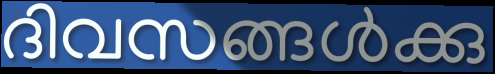
ദിവസങ്ങൾക്കു